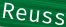
Reuss